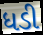
ધડી